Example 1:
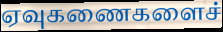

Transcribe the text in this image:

ஏவுகணைகளைச்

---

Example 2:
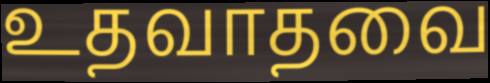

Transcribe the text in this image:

உதவாதவை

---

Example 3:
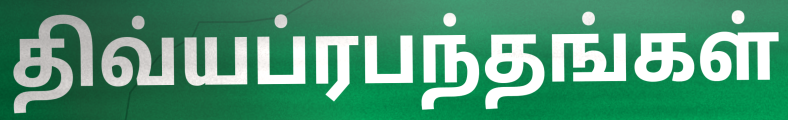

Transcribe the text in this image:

திவ்யப்ரபந்தங்கள்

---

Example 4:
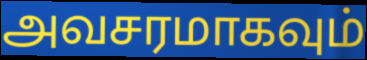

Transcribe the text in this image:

அவசரமாகவும்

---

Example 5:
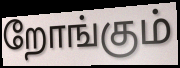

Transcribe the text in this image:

றோங்கும்